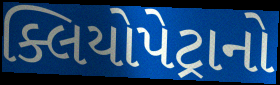
ક્લિયોપેટ્રાનો